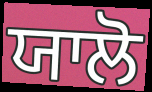
ਯਾਲੋ